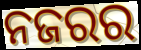
ନଜରର